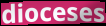
dioceses